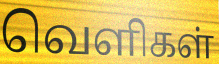
வெளிகள்